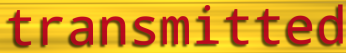
transmitted